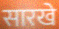
सारखे